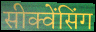
सीक्वेंसिंग